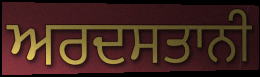
ਅਰਦਸਤਾਨੀ